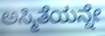
ಅಸ್ಮಿತೆಯನ್ನೇ